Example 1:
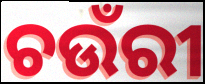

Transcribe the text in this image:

ଚଉଁରୀ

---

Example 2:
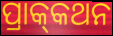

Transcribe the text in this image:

ପ୍ରାକ୍‌କଥନ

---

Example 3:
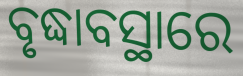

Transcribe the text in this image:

ବୃଦ୍ଧାବସ୍ଥାରେ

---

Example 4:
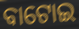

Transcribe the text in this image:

ବାଟୋଇ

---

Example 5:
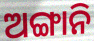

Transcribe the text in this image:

ଅଙ୍ଗାନି